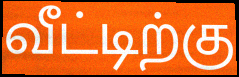
வீட்டிற்கு